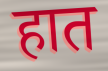
हात